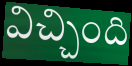
విచ్చింది